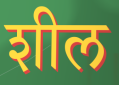
शील